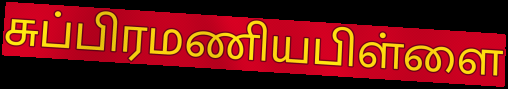
சுப்பிரமணியபிள்ளை